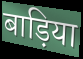
बाड़िया